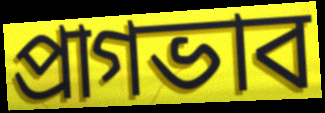
প্রাগভাব